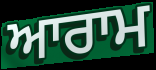
ਆਰਾਮ